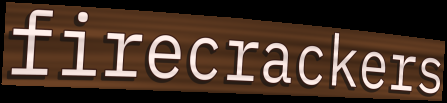
firecrackers